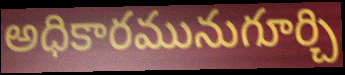
అధికారమునుగూర్చి